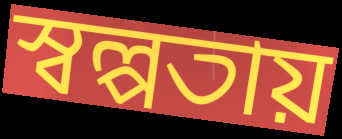
স্বল্পতায়